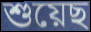
শুয়েছ